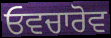
ਓਵਚਾਰੋਵ